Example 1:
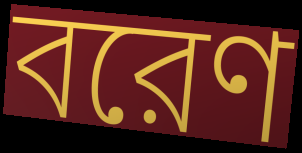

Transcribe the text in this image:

বরেণ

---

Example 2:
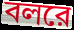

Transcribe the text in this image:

বলরে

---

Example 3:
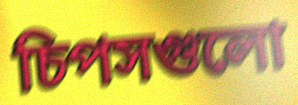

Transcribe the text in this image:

চিপসগুলো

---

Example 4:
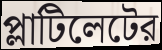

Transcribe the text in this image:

প্লাটিলেটের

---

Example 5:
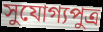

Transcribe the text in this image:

সুযোগ্যপুত্র